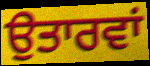
ਉਤਾਰਵਾਂ